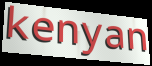
kenyan